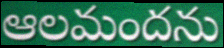
ఆలమందను